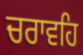
ਚਰਾਵਹਿ